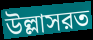
উল্লাসরত